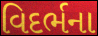
વિદર્ભના